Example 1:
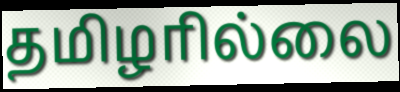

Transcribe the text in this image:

தமிழரில்லை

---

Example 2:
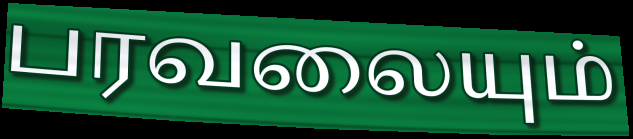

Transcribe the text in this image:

பரவலையும்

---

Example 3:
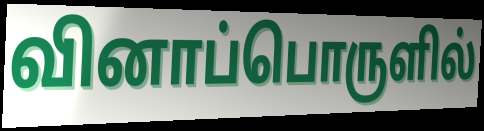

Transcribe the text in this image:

வினாப்பொருளில்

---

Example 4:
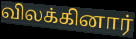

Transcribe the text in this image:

விலக்கினார்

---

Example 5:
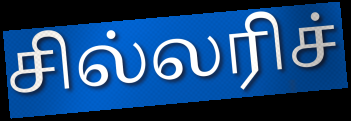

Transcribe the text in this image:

சில்லரிச்